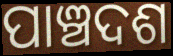
ପାଞ୍ଚଦଶ